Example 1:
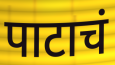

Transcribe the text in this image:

पाटाचं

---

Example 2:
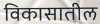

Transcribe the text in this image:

विकासातील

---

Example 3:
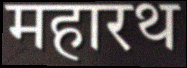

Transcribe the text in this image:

महारथ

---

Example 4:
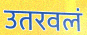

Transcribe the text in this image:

उतरवलं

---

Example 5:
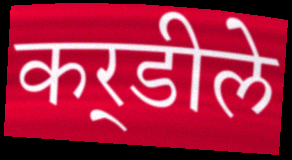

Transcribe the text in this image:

कर्डीले